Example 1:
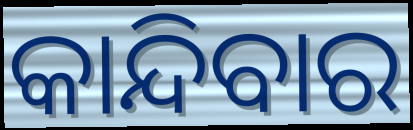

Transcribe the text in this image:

କାନ୍ଦିବାର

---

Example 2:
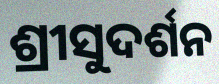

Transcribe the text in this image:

ଶ୍ରୀସୁଦର୍ଶନ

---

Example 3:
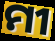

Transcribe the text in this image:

ମୀ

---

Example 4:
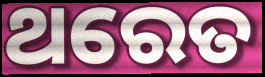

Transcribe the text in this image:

ଥରେତ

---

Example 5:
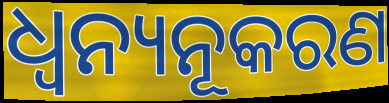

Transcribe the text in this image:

ଧ୍ୱନ୍ୟନୂକରଣ